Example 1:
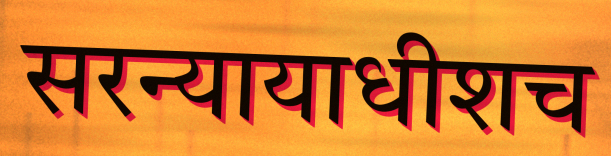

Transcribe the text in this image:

सरन्यायाधीशच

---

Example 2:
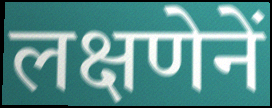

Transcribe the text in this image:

लक्षणेनें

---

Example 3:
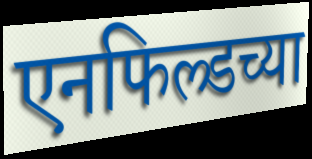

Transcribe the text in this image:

एनफिल्डच्या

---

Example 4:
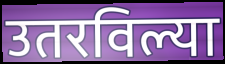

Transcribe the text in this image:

उतरविल्या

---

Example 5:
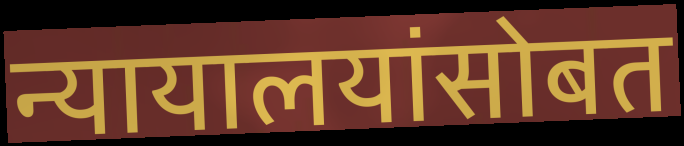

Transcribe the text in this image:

न्यायालयांसोबत